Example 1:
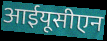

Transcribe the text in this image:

आईयूसीएन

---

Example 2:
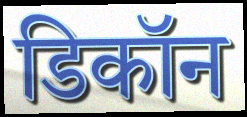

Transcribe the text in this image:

डिकॉन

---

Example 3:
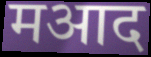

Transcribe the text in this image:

मआद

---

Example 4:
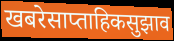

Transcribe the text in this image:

खबरेसाप्ताहिकसुझाव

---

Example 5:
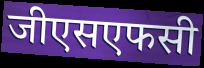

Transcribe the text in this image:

जीएसएफसी